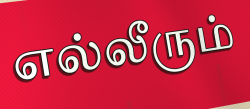
எல்லீரும்